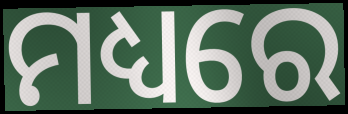
ମଧ୍ୟରେ